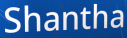
Shantha